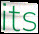
its